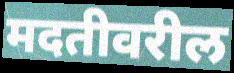
मदतीवरील